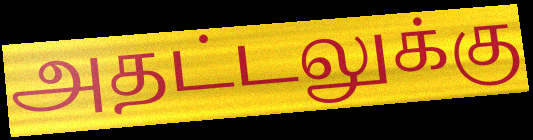
அதட்டலுக்கு